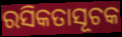
ରସିକତାସୂଚକ